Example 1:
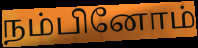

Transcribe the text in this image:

நம்பினோம்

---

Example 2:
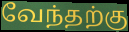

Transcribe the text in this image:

வேந்தற்கு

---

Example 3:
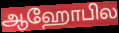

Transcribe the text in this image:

ஆஹோபில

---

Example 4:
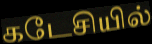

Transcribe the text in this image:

கடேசியில்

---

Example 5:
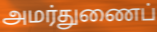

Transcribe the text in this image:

அமர்துணைப்